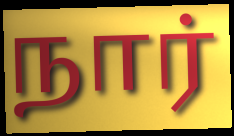
நார்